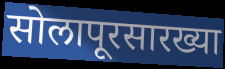
सोलापूरसारख्या